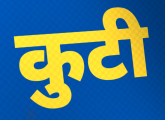
कुटी